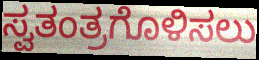
ಸ್ವತಂತ್ರಗೊಳಿಸಲು